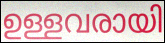
ഉള്ളവരായി